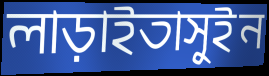
লাড়াইতাসুইন